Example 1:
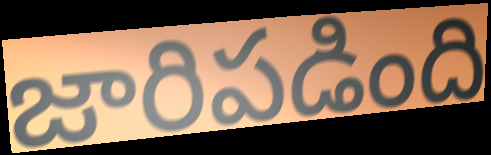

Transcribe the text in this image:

జారిపడింది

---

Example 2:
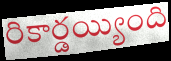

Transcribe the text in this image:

రికార్డయ్యింది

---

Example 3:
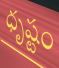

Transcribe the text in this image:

ధృష్టం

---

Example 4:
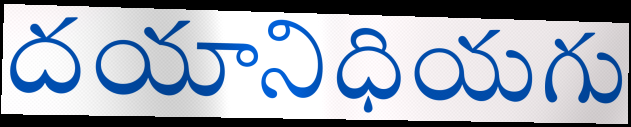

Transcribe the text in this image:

దయానిధియగు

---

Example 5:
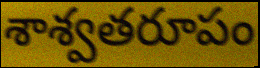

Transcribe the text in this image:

శాశ్వతరూపం